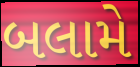
બલામે